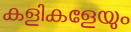
കളികളേയും